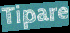
Tipare